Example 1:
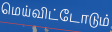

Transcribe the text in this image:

மெய்விட்டோடும்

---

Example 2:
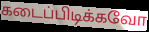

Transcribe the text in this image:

கடைப்பிடிக்கவோ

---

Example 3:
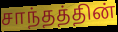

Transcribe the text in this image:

சாந்தத்தின்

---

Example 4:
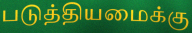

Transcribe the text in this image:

படுத்தியமைக்கு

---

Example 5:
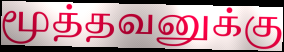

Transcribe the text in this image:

மூத்தவனுக்கு